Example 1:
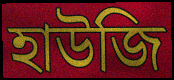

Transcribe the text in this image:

হাউজি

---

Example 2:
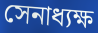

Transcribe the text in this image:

সেনাধ্যক্ষ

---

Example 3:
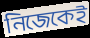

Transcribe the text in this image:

নিজেকেই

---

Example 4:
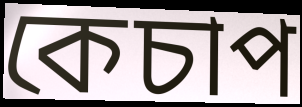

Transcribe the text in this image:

কেচাপ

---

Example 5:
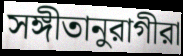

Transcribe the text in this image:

সঙ্গীতানুরাগীরা